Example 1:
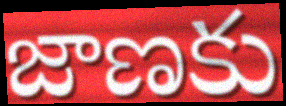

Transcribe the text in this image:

జాణకు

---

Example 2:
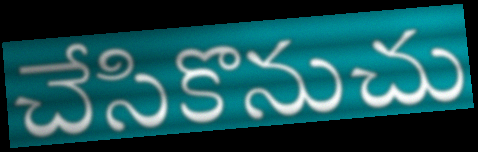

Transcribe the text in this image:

చేసికొనుచు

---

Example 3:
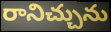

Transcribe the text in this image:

రానిచ్చును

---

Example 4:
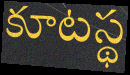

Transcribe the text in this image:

కూటస్థ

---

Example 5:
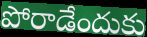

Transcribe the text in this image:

పోరాడేందుకు